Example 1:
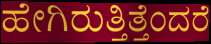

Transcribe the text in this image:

ಹೇಗಿರುತ್ತಿತ್ತೆಂದರೆ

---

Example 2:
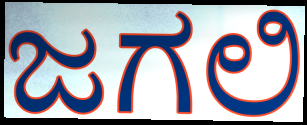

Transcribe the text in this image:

ಜಗಲಿ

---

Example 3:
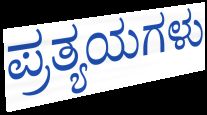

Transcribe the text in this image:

ಪ್ರತ್ಯಯಗಳು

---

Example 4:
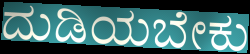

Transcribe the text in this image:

ದುಡಿಯಬೇಕು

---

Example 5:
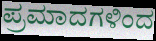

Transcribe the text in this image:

ಪ್ರಮಾದಗಳಿಂದ